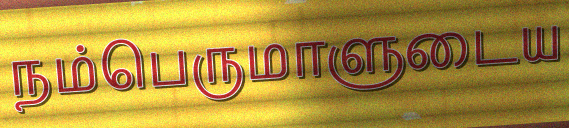
நம்பெருமாளுடைய